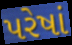
પરેષાં